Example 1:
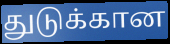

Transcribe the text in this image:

துடுக்கான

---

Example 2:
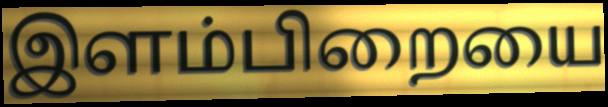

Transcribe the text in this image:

இளம்பிறையை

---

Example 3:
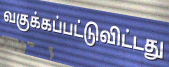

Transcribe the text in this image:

வகுக்கப்பட்டுவிட்டது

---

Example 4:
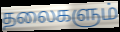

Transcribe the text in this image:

தலைகளும்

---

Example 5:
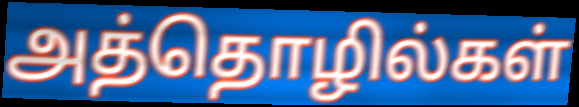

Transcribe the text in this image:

அத்தொழில்கள்